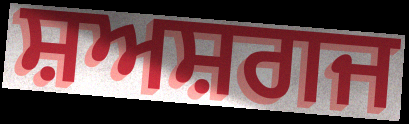
ਸ਼ਅਸ਼ਗਜ